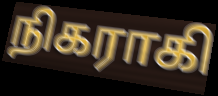
நிகராகி